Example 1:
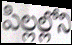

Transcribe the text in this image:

పిల్లల్లోని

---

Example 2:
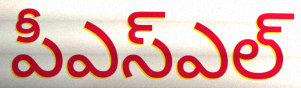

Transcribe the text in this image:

పీఎస్ఎల్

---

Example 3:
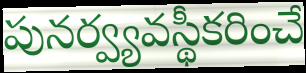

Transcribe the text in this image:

పునర్వ్యవస్థీకరించే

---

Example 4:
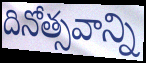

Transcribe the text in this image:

దినోత్సవాన్ని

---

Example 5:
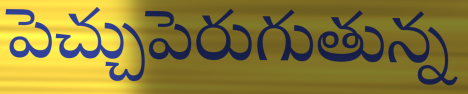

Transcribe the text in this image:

పెచ్చుపెరుగుతున్న